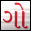
ગો